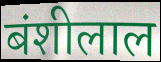
बंशीलाल